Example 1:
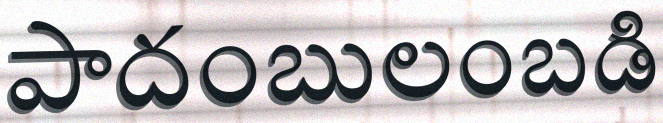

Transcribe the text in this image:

పాదంబులంబడి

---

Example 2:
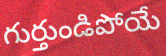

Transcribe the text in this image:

గుర్తుండిపోయే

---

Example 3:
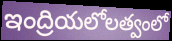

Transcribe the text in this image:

ఇంద్రియలోలత్వంలో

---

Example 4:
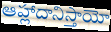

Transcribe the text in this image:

ఆహ్లాదానిస్తాయో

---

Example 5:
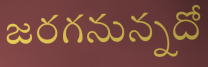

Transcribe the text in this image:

జరగనున్నదో